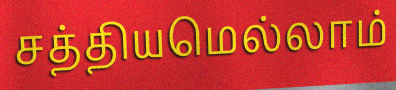
சத்தியமெல்லாம்